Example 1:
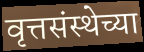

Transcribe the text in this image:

वृत्तसंस्थेच्या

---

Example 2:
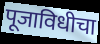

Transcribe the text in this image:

पूजाविधीचा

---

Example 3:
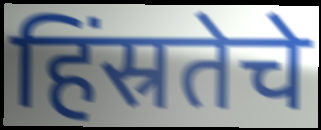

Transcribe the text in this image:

हिंस्रतेचे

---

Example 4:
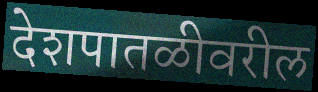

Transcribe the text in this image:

देशपातळीवरील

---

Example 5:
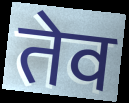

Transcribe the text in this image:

तेव